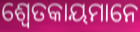
ଶ୍ୱେତକାୟମାନେ